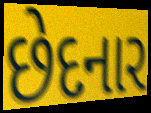
છેદનાર